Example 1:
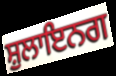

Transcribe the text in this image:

ਸ਼ੁਲਾਇਨਗ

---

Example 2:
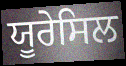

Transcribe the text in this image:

ਯੂਰੇਸਿਲ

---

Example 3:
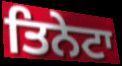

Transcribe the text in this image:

ਤਿਨੇਟਾ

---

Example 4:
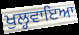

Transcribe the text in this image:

ਖੁਲ੍ਹਵਾਇਆ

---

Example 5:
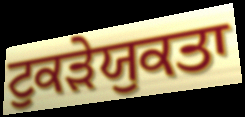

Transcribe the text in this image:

ਟੁਕੜੇਯੁਕਤਾ